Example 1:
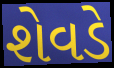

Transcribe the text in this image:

શેવડે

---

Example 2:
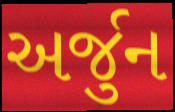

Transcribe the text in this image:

અર્જુન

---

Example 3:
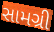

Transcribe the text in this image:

સામગ્રી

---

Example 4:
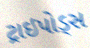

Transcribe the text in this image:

ટ્રાઇપોડ્સ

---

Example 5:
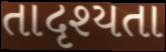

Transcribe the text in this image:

તાદૃશ્યતા